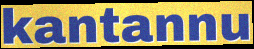
kantannu